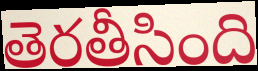
తెరతీసింది